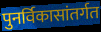
पुनर्विकासांतर्गत